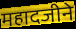
महादजीने